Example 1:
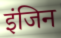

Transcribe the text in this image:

इंजिन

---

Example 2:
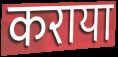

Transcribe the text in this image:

कराया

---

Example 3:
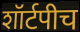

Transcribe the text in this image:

शॉर्टपीच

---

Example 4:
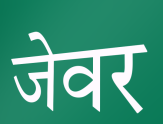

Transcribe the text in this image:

जेवर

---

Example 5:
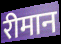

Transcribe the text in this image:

रीमान